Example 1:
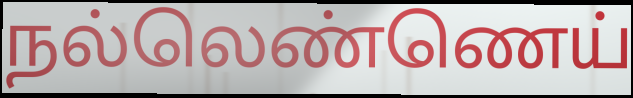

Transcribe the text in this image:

நல்லெண்ணெய்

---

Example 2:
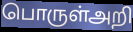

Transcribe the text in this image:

பொருள்அறி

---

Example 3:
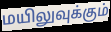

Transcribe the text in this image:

மயிலுவுக்கும்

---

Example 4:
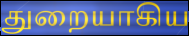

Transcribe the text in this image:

துறையாகிய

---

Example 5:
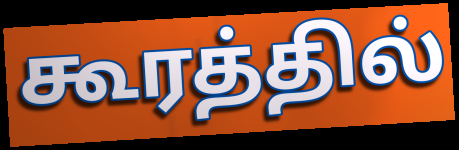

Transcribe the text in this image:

கூரத்தில்